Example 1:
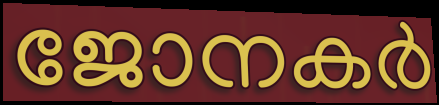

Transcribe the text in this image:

ജോനകർ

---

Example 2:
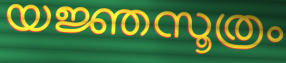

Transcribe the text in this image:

യജ്ഞസൂത്രം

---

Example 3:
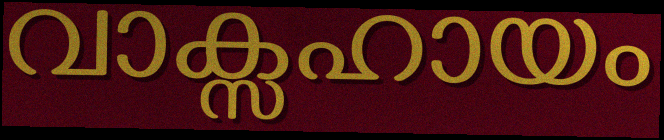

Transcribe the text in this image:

വാക്സഹായം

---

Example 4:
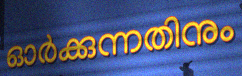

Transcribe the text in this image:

ഓർക്കുന്നതിനും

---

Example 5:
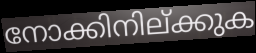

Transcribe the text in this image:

നോക്കിനില്ക്കുക